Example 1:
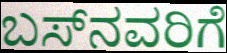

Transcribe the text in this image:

ಬಸ್‌ನವರಿಗೆ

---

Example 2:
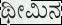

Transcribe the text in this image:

ಥೀಮಿನ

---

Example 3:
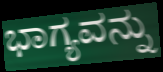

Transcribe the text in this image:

ಭಾಗ್ಯವನ್ನು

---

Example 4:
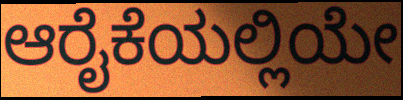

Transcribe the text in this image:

ಆರೈಕೆಯಲ್ಲಿಯೇ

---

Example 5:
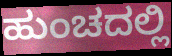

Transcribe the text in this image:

ಹುಂಚದಲ್ಲಿ